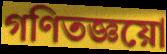
গণিতজ্ঞয়ো